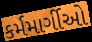
કર્મમાર્ગીઓ